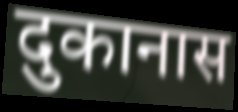
दुकानास